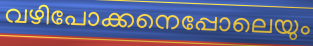
വഴിപോക്കനെപ്പോലെയും